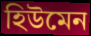
হিউমেন